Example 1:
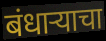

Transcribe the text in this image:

बंधार्‍याचा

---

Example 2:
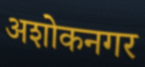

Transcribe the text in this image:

अशोकनगर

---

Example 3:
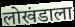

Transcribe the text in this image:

लोखंडाला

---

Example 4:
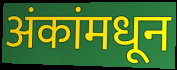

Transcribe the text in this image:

अंकांमधून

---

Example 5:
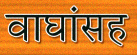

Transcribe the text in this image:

वाघांसह